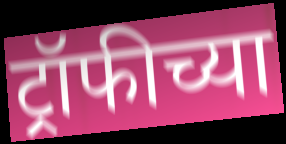
ट्रॉफीच्या